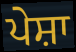
ਪੇਸ਼ਾ